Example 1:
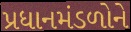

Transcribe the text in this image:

પ્રધાનમંડળોને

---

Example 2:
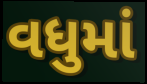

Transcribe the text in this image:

વધુમાં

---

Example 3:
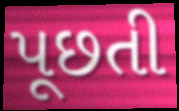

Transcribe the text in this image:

પૂછતી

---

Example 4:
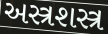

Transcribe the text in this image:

અસ્ત્રશસ્ત્ર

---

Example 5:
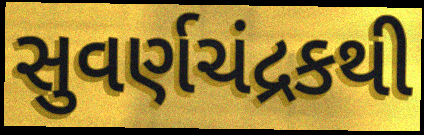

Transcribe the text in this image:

સુવર્ણચંદ્રકથી